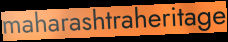
maharashtraheritage